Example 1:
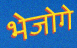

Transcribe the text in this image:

भेजोगे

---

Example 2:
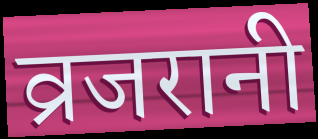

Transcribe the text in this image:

व्रजरानी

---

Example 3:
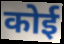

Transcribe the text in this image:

कोई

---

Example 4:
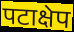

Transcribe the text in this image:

पटाक्षेप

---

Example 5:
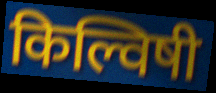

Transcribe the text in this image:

किल्विषी